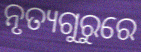
ନୃତ୍ୟଗୁରୁରେ